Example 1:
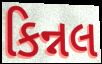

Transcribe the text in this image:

કિન્નલ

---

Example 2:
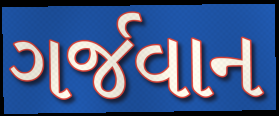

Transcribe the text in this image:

ગર્જવાન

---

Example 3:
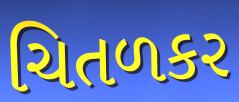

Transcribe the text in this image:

ચિતળકર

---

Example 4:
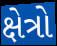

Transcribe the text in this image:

ક્ષેત્રો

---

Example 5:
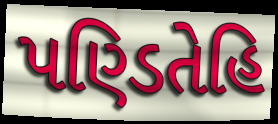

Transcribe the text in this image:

પણ્ડિતેહિ